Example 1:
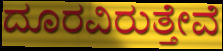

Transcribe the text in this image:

ದೂರವಿರುತ್ತೇವೆ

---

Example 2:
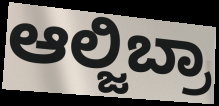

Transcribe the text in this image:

ಆಲ್ಜಿಬ್ರಾ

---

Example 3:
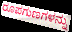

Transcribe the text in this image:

ರೂಪಗುಣಗಳನ್ನು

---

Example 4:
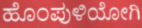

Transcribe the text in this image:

ಹೊಂಪುಳಿಯೋಗಿ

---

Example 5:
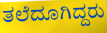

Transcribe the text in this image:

ತಲೆದೂಗಿದ್ದರು